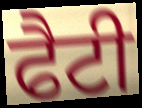
ਫੈਟੀ